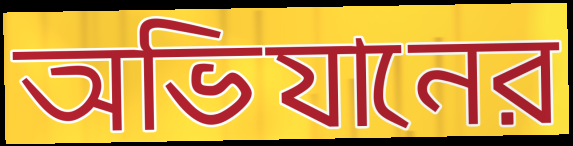
অভিযানের